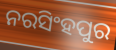
ନରସିଂହପୁର